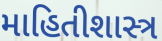
માહિતીશાસ્ત્ર